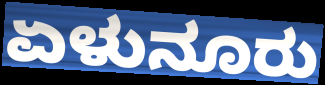
ಏಳುನೂರು